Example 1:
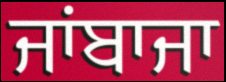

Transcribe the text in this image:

ਜਾਂਬਾਜਾ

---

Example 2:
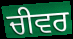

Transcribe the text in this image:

ਚੀਵਰ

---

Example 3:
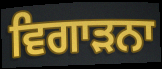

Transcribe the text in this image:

ਵਿਗਾੜਨਾ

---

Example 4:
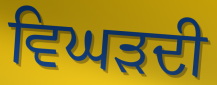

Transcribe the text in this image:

ਵਿਘੜਦੀ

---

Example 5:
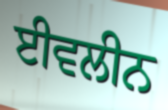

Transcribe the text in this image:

ਈਵਲੀਨ